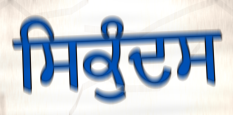
ਸਿਕੁੰਦਸ